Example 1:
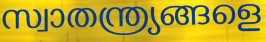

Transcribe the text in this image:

സ്വാതന്ത്ര്യങ്ങളെ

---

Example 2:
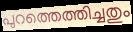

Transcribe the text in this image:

പുറത്തെത്തിച്ചതും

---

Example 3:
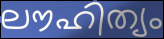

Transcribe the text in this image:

ലൗഹിത്യം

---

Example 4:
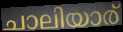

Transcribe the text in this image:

ചാലിയാര്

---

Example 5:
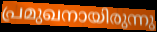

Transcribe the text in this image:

പ്രമുഖനായിരുന്നു